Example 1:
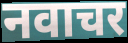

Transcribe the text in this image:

नवाचर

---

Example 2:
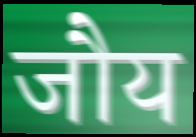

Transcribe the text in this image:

जौय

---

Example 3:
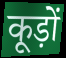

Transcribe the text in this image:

कूड़ों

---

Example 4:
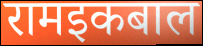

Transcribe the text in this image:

रामइकबाल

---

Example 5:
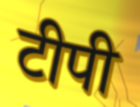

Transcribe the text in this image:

टीपी